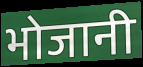
भोजानी